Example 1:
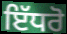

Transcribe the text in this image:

ਇੱਧਰੋ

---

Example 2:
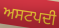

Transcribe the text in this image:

ਅਸਟਪਦੀ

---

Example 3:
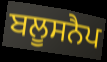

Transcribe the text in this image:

ਬਲੂਸਨੈਪ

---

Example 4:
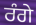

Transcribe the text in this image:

ਰੰਗੇ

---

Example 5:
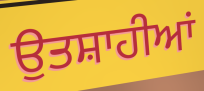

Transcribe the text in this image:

ਉਤਸ਼ਾਹੀਆਂ